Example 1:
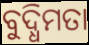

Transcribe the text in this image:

ବୁଦ୍ଧିମତା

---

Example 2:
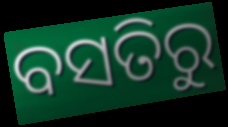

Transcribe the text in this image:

ବସତିରୁ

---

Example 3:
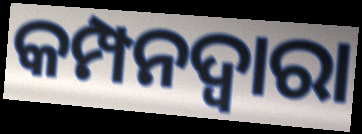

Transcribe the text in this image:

କମ୍ପନଦ୍ୱାରା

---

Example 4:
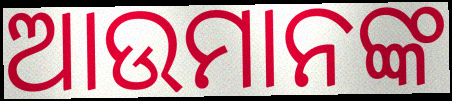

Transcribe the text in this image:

ଆଉମାନଙ୍କ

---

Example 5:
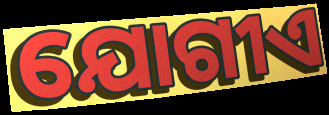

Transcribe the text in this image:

ଯୋଗୀଏ